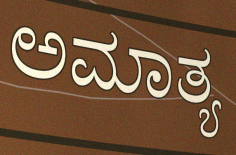
ಅಮಾತ್ಯ